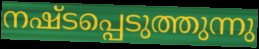
നഷ്ടപ്പെടുത്തുന്നു